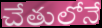
చేతులోనే